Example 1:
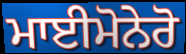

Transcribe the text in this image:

ਮਾਈਮੋਨੇਰੋ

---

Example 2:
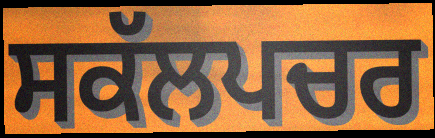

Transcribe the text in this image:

ਸਕੱਲਪਚਰ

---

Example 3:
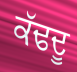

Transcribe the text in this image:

ਕੱਢਦੂ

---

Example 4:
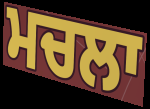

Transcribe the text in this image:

ਮਚਲਾ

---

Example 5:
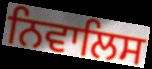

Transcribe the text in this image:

ਨਿਵਾਲਿਸ